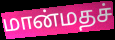
மான்மதச்